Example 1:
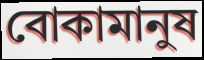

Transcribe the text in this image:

বোকামানুষ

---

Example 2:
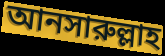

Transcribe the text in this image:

আনসারুল্লাহ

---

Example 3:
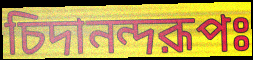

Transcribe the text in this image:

চিদানন্দরূপঃ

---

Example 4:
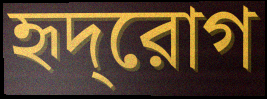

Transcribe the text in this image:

হৃদ্‌রোগ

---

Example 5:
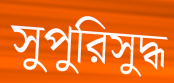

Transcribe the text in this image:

সুপুরিসুদ্ধ